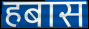
हबास